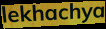
lekhachya